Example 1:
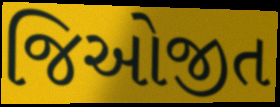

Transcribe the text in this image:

જિઓજીત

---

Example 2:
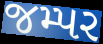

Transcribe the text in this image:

જમ્પર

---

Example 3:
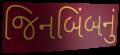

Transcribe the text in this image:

જિનબિંબનું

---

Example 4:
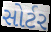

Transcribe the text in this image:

સોર્ટર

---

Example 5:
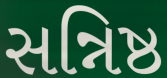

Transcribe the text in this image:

સન્નિષ્ઠ